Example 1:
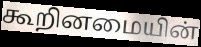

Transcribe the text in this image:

கூறினமையின்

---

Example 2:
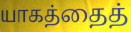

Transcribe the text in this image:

யாகத்தைத்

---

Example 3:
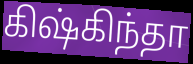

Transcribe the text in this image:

கிஷ்கிந்தா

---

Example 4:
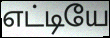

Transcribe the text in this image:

எட்டியே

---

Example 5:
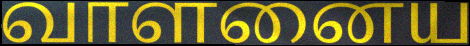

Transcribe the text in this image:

வாளனைய